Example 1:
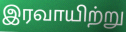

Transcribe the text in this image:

இரவாயிற்று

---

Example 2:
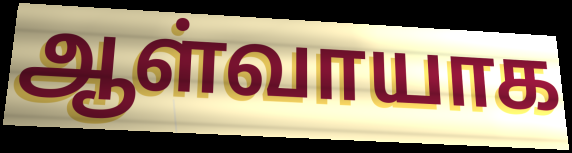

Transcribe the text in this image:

ஆள்வாயாக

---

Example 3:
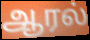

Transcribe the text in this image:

ஆரல்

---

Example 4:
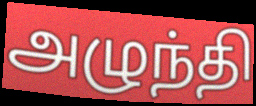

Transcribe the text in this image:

அழுந்தி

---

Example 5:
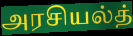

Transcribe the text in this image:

அரசியல்த்